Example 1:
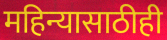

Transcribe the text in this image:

महिन्यासाठीही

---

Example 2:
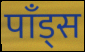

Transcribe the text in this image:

पाँड्स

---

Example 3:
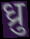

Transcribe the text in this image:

ध्रु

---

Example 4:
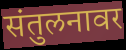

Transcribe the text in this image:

संतुलनावर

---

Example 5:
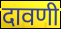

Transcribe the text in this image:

दावणी